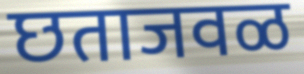
छताजवळ